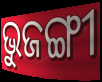
ଭୁଜଙ୍ଗୀ